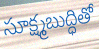
సూక్ష్మబుద్ధితో